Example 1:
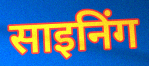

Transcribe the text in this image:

साइनिंग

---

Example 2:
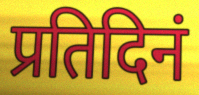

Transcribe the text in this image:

प्रतिदिनं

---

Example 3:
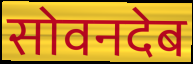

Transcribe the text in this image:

सोवनदेब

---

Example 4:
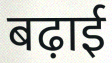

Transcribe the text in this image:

बढ़ाई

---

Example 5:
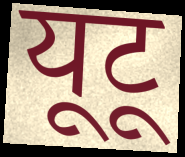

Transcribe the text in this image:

यूटू